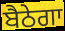
ਬੈਠੇਗਾ